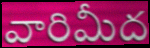
వారిమీద